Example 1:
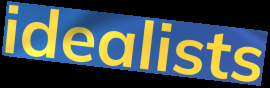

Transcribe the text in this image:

idealists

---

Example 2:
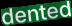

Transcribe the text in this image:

dented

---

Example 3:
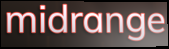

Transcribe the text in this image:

midrange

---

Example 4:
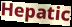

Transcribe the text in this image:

Hepatic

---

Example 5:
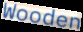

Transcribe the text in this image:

Wooden